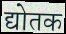
द्योतक